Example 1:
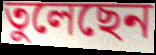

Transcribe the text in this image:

তুলেছেন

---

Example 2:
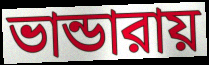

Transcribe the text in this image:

ভান্ডারায়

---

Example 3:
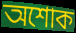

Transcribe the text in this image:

অশোক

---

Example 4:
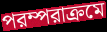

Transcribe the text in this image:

পরম্পরাক্রমে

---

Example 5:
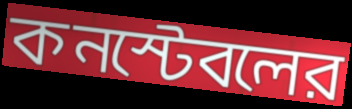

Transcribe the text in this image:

কনস্টেবলের